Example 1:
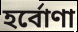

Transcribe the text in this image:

হর্বোণা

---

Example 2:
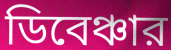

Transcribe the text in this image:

ডিবেঞ্চার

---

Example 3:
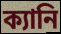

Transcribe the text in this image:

ক্যানি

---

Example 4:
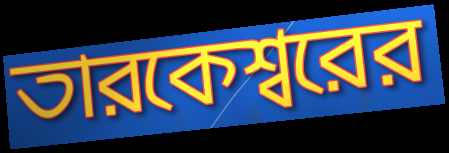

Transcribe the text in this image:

তারকেশ্বরের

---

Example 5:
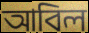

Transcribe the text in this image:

আবিল